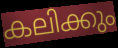
കലിക്കും